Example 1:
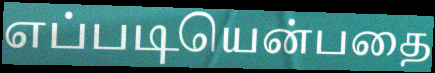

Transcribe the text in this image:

எப்படியென்பதை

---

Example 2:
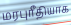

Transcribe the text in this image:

மரபுரீதியாக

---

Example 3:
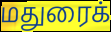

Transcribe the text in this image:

மதுரைக்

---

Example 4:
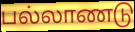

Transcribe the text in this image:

பல்லாணடு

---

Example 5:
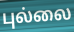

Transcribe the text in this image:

புல்லை